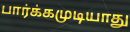
பார்க்கமுடியாது